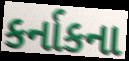
કર્નાકના